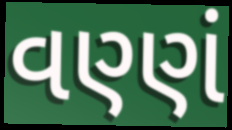
વણ્ણં